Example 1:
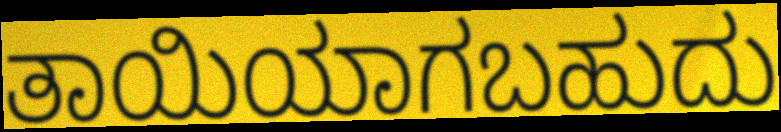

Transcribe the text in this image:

ತಾಯಿಯಾಗಬಹುದು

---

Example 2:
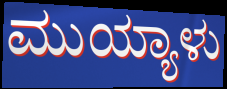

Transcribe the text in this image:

ಮುಯ್ಯಾಳು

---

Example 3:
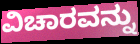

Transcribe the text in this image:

ವಿಚಾರವನ್ನು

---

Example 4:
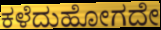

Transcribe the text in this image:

ಕಳೆದುಹೋಗದೇ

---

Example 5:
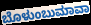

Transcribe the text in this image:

ಬೊಳುಂಬುಮಾವಾ